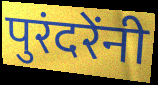
पुरंदरेंनी